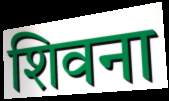
शिवना